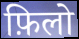
फ़िलो